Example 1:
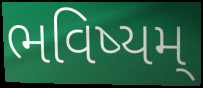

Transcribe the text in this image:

ભવિષ્યમ્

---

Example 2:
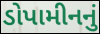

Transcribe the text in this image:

ડોપામીનનું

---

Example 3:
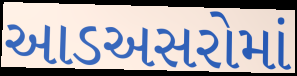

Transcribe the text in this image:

આડઅસરોમાં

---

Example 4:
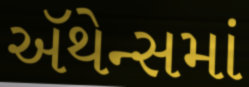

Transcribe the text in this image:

ઍથેન્સમાં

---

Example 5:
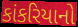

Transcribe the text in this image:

કાંકરિયાનો